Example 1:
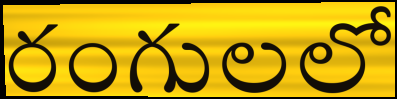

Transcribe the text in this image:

రంగులలో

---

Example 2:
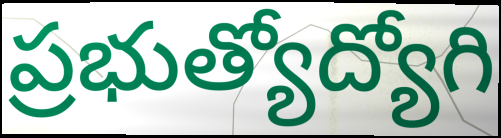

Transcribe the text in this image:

ప్రభుత్యోద్యోగి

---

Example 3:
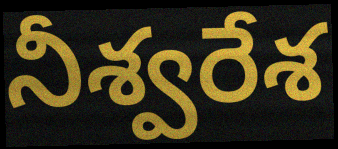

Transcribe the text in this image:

నీశ్వరేశ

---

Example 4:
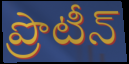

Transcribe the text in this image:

ప్రొటీన్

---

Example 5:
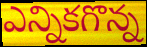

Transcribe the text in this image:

ఎన్నికగొన్న